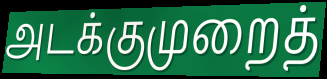
அடக்குமுறைத்